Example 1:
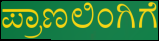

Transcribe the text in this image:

ಪ್ರಾಣಲಿಂಗಿಗೆ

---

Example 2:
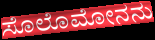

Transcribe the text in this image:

ಸೊಲೊಮೋನನು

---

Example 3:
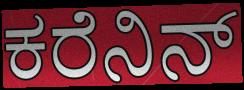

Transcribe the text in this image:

ಕರೆನಿನ್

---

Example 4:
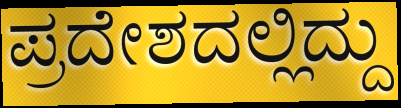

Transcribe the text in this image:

ಪ್ರದೇಶದಲ್ಲಿದ್ದು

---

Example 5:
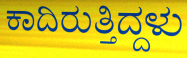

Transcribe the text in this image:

ಕಾದಿರುತ್ತಿದ್ದಳು